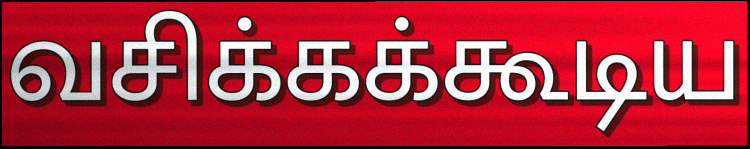
வசிக்கக்கூடிய